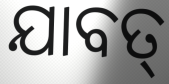
ଯାବତ୍